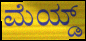
ಮೆಯ್ಡ್